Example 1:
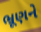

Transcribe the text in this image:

ભ્રૂણને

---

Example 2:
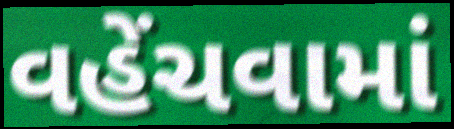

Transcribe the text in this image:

વહેંચવામાં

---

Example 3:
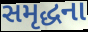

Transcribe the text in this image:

સમૃદ્ધના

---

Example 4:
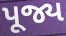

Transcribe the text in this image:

પૂજ્ય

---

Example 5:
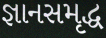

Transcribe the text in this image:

જ્ઞાનસમૃદ્ધ